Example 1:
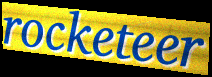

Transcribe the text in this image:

rocketeer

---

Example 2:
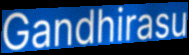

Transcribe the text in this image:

Gandhirasu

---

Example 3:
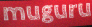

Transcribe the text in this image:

muguru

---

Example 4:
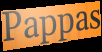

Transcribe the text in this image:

Pappas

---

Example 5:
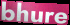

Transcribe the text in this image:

bhure